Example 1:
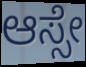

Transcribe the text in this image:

ಆಸ್ಸೇ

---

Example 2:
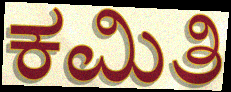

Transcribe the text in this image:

ಕಮಿತಿ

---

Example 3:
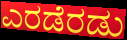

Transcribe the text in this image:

ಎರಡೆರಡು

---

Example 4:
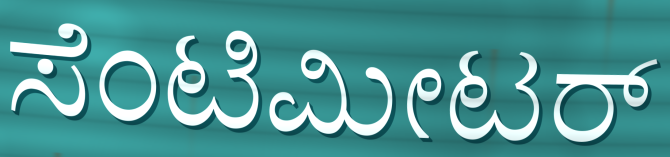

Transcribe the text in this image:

ಸೆಂಟಿಮೀಟರ್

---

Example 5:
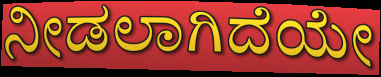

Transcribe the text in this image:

ನೀಡಲಾಗಿದೆಯೇ